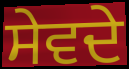
ਸੇਵਦੇ